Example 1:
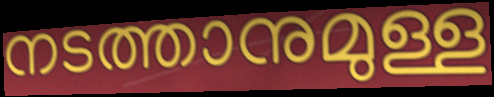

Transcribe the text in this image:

നടത്താനുമുള്ള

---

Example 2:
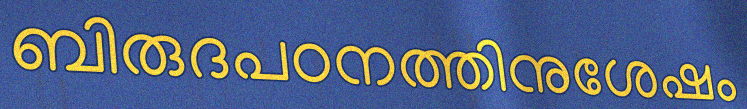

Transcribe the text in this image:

ബിരുദപഠനത്തിനുശേഷം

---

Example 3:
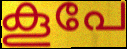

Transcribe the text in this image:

കൂപേ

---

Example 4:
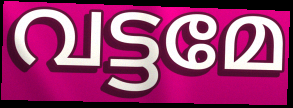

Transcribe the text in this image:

വട്ടമേ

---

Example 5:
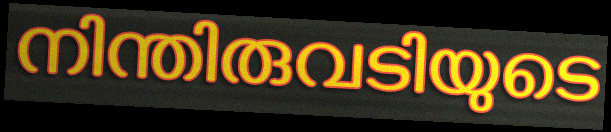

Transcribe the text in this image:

നിന്തിരുവടിയുടെ